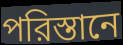
পরিস্তানে